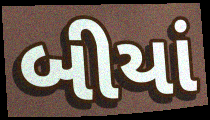
બીયાં